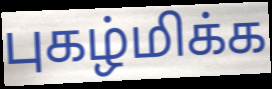
புகழ்மிக்க